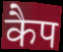
कैप